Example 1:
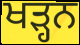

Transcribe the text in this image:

ਖੜ੍ਹਨ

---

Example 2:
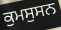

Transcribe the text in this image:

ਕੁਮਸੁਸਨ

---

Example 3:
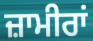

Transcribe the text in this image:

ਜ਼ਾਮੀਰਾਂ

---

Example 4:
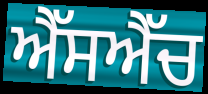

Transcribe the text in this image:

ਐੱਸਐੱਚ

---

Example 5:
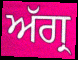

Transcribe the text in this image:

ਅੱਗ੍ਰ